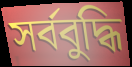
সৰ্ববুদ্ধি